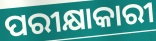
ପରୀକ୍ଷାକାରୀ